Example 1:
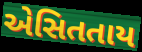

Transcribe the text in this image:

એસિતતાય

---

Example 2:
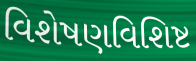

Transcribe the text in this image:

વિશેષણવિશિષ્ટ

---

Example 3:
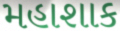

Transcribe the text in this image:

મહાશાક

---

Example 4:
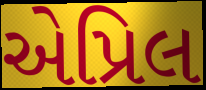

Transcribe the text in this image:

એપ્રિલ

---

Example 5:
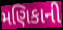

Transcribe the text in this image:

મણિકાની